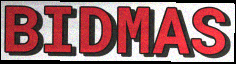
BIDMAS